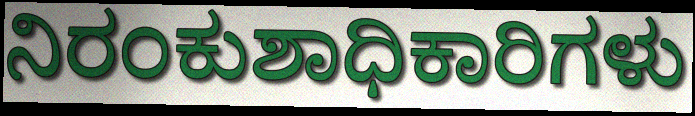
ನಿರಂಕುಶಾಧಿಕಾರಿಗಳು